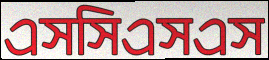
এসসিএসএস